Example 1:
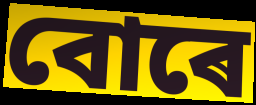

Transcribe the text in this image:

বোৰে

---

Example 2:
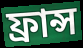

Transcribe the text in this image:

ফ্ৰান্স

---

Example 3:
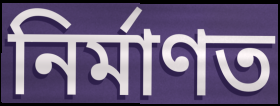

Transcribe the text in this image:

নিৰ্মাণত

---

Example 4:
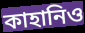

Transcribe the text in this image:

কাহানিও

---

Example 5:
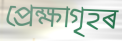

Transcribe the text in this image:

প্ৰেক্ষাগৃহৰ